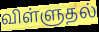
விள்ளுதல்